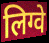
लिग्वे